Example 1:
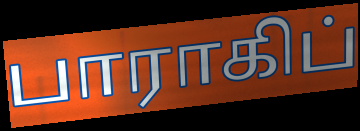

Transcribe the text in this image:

பாராகிப்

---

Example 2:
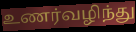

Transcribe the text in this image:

உணர்வழிந்து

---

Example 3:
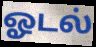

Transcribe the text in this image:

ஓடல்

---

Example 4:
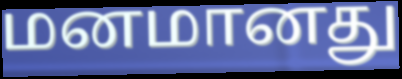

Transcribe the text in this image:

மனமானது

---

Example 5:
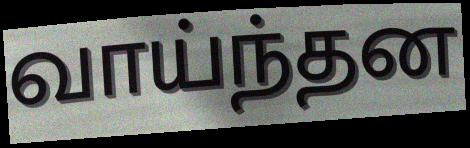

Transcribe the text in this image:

வாய்ந்தன